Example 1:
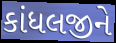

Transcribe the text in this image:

કાંધલજીને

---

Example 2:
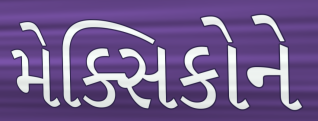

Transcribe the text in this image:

મેક્સિકોને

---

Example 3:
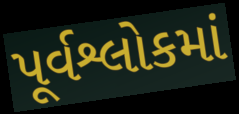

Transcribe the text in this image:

પૂર્વશ્લોકમાં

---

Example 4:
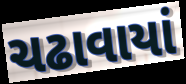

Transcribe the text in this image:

ચઢાવાયાં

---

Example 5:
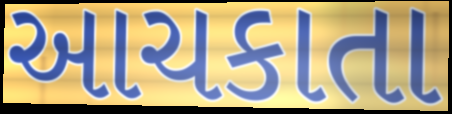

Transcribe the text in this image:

આચકાતા